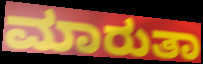
ಮಾರುತಾ